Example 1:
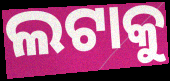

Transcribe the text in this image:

ଲଟାକୁ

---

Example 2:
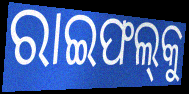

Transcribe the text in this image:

ରାଇଫଲ୍‍କୁ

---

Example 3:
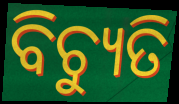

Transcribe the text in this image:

ବିଚ୍ୟୁତି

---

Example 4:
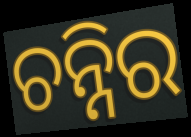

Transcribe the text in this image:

ଚନ୍ନିର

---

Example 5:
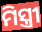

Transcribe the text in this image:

ମିସ୍ତ୍ରୀ